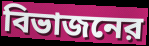
বিভাজনের